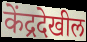
केंद्रदेखील